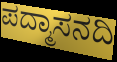
ಪದ್ಮಾಸನದಿ